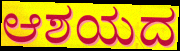
ಆಶಯದ